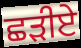
ਛੜੀਏ